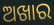
ଅଖାର